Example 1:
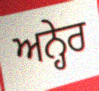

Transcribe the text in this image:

ਅਨ੍ਹੇਰ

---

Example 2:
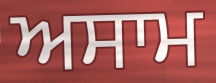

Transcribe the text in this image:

ਅਸਾਮ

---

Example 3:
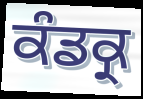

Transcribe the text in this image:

ਕੰਡਕ੍ਰ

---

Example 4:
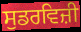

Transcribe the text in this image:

ਸੁਡਰਵਿਜ਼ੀ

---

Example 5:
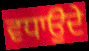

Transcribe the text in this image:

ਵਧਾਉੁਂਦੇ